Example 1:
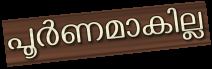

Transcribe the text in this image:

പൂർണമാകില്ല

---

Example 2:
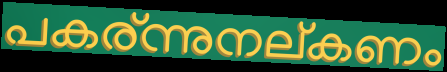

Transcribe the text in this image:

പകര്ന്നുനല്കണം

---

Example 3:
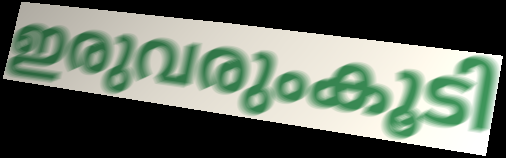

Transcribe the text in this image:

ഇരുവരുംകൂടി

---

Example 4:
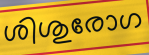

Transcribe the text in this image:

ശിശുരോഗ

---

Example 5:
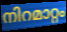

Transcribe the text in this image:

നിറമാറ്റം